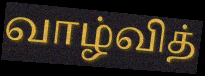
வாழ்வித்